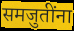
समजुतींना